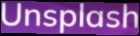
Unsplash